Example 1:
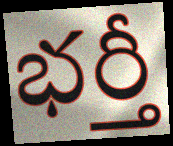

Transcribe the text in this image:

భర్తీ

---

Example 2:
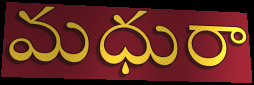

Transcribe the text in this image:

మధురా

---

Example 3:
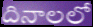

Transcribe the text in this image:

దినాలలో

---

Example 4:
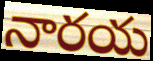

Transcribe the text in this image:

నారయ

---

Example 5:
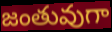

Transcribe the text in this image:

జంతువుగా